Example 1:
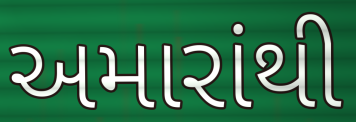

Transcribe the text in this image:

અમારાંથી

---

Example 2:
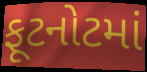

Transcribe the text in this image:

ફૂટનોટમાં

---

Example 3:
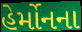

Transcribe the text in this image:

હેર્મોનના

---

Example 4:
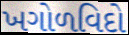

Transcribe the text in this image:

ખગોળવિદો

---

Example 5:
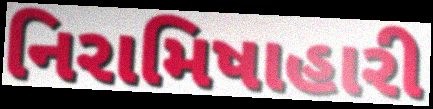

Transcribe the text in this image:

નિરામિષાહારી